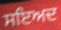
ਸਇਅਦ